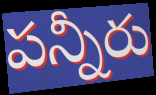
పన్నీరు